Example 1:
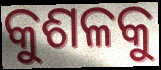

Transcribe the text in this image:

କୁଶଳକୁ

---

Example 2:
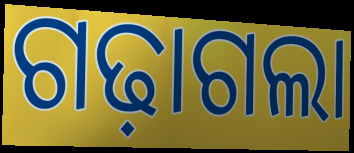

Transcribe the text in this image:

ଗଢ଼ାଗଲା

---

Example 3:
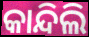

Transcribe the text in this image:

କାନ୍ଦିଲି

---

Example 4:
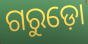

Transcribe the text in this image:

ଗରୁଡ଼ୋ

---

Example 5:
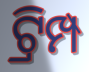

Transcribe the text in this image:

ଟ୍ରିମ୍ପ